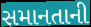
સમાનતાની